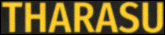
THARASU